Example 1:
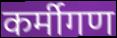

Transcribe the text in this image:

कर्मीगण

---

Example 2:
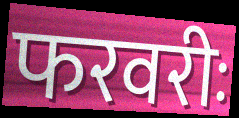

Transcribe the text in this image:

फरवरीः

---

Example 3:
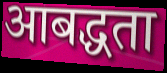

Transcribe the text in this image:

आबद्धता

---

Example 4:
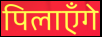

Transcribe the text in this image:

पिलाएँगे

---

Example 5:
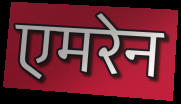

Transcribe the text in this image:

एमरेन